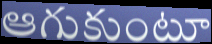
ఆగుకుంటూ